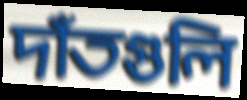
দাঁতগুলি